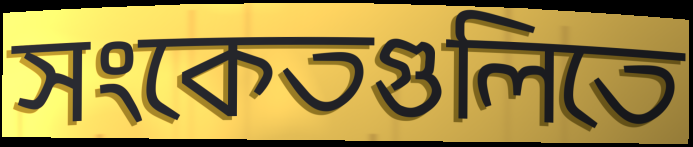
সংকেতগুলিতে